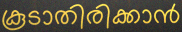
കൂടാതിരിക്കാൻ